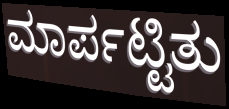
ಮಾರ್ಪಟ್ಟಿತು